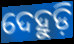
ଦେହୁଡ଼ି